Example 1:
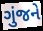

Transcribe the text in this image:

ગુંજને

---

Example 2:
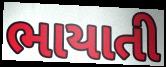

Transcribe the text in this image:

ભાયાતી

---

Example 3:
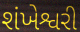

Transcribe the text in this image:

શંખેશ્વરી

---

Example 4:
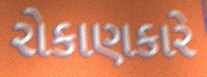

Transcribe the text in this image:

રોકાણકારે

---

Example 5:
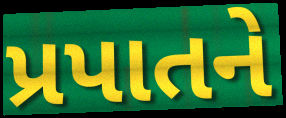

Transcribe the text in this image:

પ્રપાતને